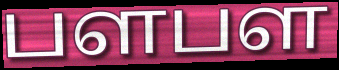
பளபள